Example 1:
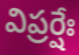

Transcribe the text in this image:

విప్రర్షేః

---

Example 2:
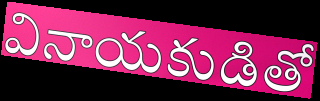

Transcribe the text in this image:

వినాయకుడితో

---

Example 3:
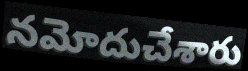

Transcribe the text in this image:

నమోదుచేశారు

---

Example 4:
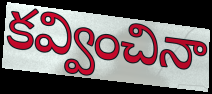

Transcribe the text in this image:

కవ్వించినా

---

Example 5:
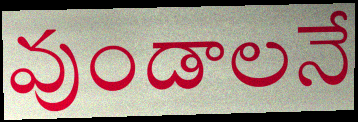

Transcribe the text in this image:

వుండాలనే